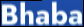
Bhaba